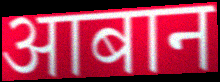
आबान